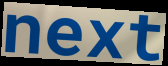
next